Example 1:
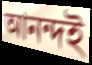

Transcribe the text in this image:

আনন্দই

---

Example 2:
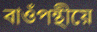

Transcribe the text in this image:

বাওঁপন্থীয়ে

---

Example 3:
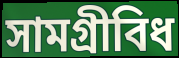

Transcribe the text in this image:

সামগ্ৰীবিধ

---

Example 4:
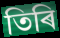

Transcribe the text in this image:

তিৰি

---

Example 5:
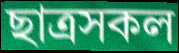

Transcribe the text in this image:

ছাত্ৰসকল